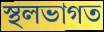
স্থলভাগত